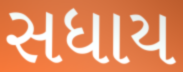
સધાય